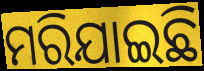
ମରିଯାଇଛି